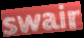
swair